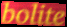
bolite